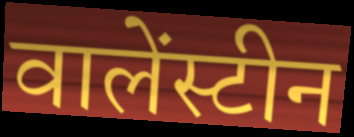
वालेंस्टीन